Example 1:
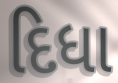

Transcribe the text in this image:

દિધા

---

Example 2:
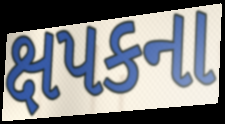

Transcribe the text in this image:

ક્ષપકના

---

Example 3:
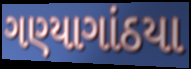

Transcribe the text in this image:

ગણ્યાગાંઠયા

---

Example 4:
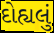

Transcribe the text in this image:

દોહ્યલું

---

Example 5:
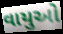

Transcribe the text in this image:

વાયુઓ